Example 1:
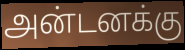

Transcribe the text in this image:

அன்டனக்கு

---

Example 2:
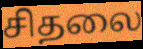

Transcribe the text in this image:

சிதலை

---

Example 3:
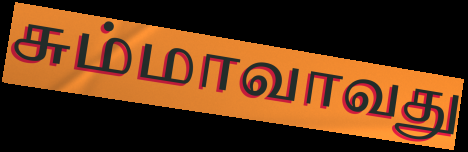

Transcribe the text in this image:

சும்மாவாவது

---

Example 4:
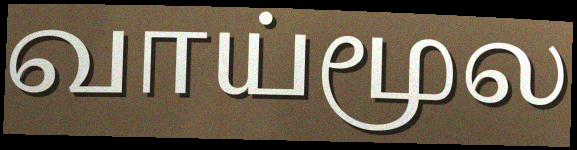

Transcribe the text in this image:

வாய்மூல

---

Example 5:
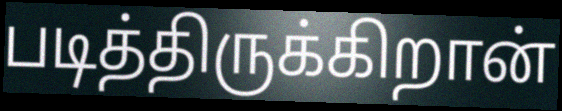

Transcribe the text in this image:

படித்திருக்கிறான்